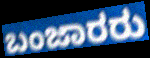
ಬಂಜಾರರು